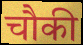
चौकी